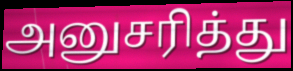
அனுசரித்து